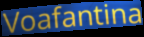
Voafantina